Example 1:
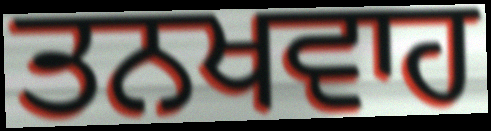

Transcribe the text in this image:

ਤਨਖਵਾਹ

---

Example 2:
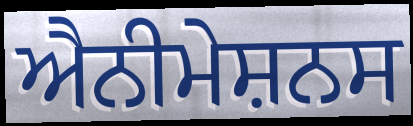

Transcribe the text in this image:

ਐਨੀਮੇਸ਼ਨਸ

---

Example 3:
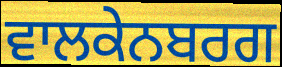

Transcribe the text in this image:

ਵਾਲਕੇਨਬਰਗ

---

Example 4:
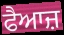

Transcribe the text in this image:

ਫੈਆਜ਼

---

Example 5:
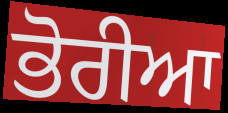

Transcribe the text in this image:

ਭੋਰੀਆ